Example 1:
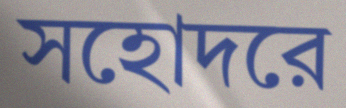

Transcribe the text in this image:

সহোদরে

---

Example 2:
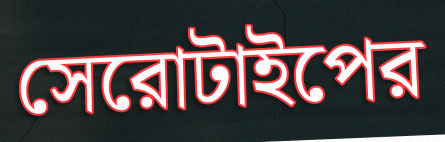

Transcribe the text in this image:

সেরোটাইপের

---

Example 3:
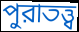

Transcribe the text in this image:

পুরাতত্ত্ব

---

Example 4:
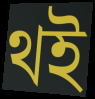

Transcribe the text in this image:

থই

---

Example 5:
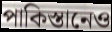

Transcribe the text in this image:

পাকিস্তানেও